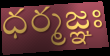
ధర్మజ్ఞః